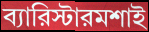
ব্যারিস্টারমশাই